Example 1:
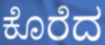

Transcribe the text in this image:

ಕೊರೆದ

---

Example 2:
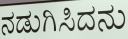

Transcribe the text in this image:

ನಡುಗಿಸಿದನು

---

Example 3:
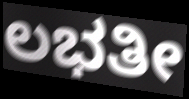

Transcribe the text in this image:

ಲಭತೀ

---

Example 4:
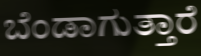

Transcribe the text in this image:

ಬೆಂಡಾಗುತ್ತಾರೆ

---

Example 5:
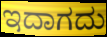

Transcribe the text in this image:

ಇದಾಗದು